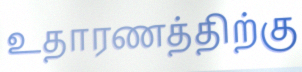
உதாரணத்திற்கு